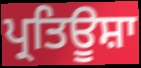
ਪ੍ਰਤਿਊਸ਼ਾ